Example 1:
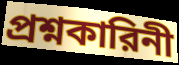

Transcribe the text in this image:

প্রশ্নকারিনী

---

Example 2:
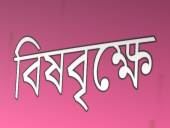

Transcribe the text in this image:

বিষবৃক্ষে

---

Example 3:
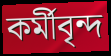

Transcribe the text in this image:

কর্মীবৃন্দ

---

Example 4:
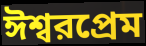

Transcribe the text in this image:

ঈশ্বরপ্রেম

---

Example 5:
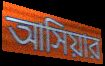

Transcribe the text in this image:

আসিয়ার